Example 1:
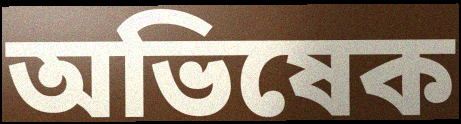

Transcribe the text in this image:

অভিষেক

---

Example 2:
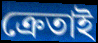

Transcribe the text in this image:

ক্ৰেতাই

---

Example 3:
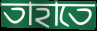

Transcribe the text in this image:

তাহাতে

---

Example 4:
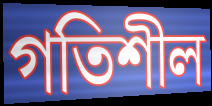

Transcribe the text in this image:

গতিশীল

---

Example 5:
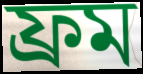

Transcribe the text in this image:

ফ্ৰম